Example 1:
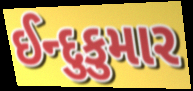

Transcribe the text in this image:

ઈન્દુકુમાર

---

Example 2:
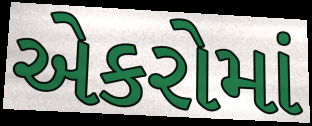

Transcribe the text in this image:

એકરોમાં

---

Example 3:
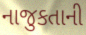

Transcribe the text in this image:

નાજુકતાની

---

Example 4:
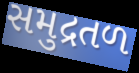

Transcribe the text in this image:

સમુદ્રતળ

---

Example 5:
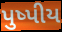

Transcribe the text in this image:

પુષ્પીય